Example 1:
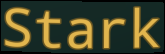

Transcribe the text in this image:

Stark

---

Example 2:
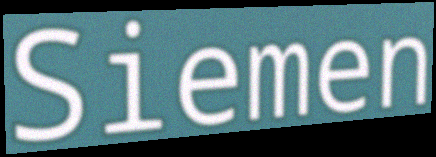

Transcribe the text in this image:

Siemen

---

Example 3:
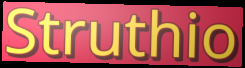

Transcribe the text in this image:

Struthio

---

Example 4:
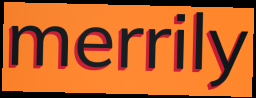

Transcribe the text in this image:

merrily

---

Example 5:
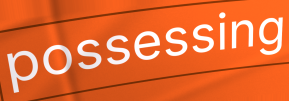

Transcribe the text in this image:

possessing